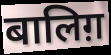
बालिग़